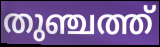
തുഞ്ചത്ത്